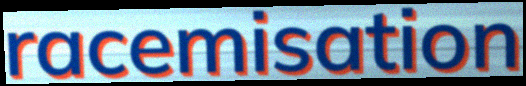
racemisation